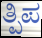
ತ್ಪಿಪ